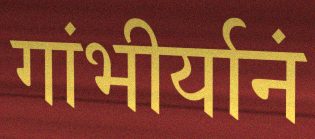
गांभीर्यानं